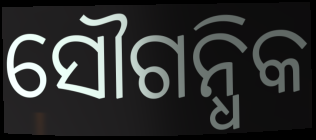
ସୌଗନ୍ଧିକ